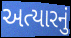
અત્યારનું